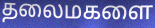
தலைமகளை